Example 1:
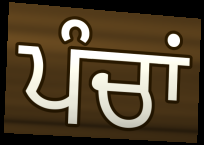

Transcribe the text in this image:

ਪੰਚਾਂ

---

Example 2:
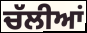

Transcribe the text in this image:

ਚੱਲੀਆਂ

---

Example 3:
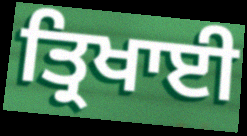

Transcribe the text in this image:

ਤ੍ਰਿਖਾਈ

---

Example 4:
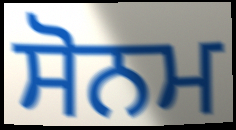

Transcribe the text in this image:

ਸੋਨਮ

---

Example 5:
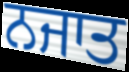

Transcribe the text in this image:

ਨਜਾਤ